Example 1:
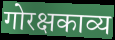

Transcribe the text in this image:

गोरक्षकाव्य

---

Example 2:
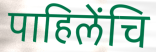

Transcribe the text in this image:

पाहिलेंचि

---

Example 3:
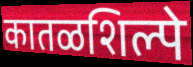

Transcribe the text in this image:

कातळशिल्पे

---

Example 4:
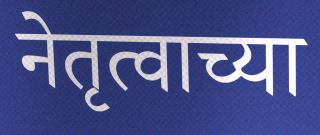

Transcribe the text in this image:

नेतृत्वाच्या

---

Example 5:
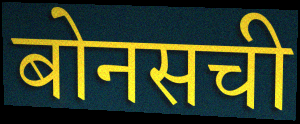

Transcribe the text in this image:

बोनसची